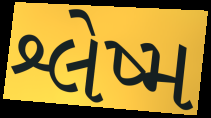
શ્લેષ્મ